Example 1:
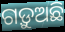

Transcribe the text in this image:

ଗଡ଼ୁଅଛି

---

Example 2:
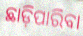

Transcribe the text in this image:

ଛାଡ଼ିପାରିବା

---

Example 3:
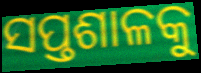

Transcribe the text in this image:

ସପ୍ତଶାଳକୁ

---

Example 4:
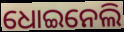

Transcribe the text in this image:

ଧୋଇନେଲି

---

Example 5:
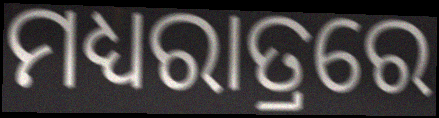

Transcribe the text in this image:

ମଧ୍ୟରାତ୍ରରେ